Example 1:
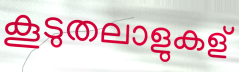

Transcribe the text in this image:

കൂടുതലാളുകള്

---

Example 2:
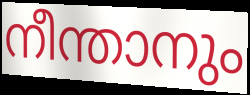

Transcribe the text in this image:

നീന്താനും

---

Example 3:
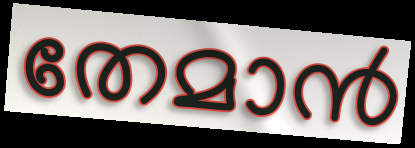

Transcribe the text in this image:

തേമാൻ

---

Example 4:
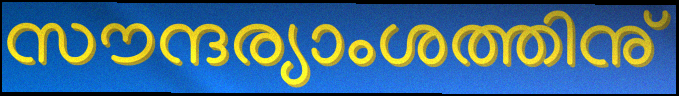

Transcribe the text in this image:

സൗന്ദര്യാംശത്തിനു്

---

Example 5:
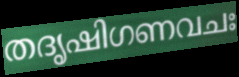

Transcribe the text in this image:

തദൃഷിഗണവചഃ